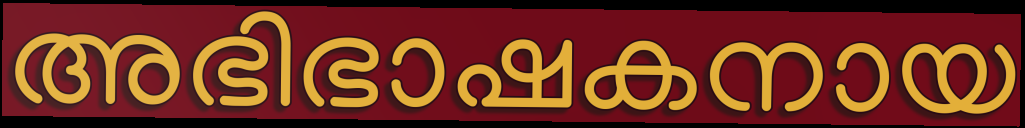
അഭിഭാഷകനായ